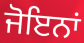
ਜੋਇਨਾਂ